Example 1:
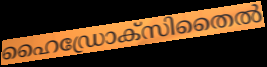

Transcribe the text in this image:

ഹൈഡ്രോക്സിതൈൽ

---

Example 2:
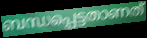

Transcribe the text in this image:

ബന്ധപ്പെട്ടതാണത്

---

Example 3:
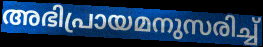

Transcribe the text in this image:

അഭിപ്രായമനുസരിച്ച്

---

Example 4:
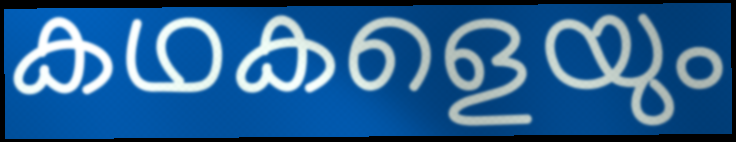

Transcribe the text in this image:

കഥകളെയും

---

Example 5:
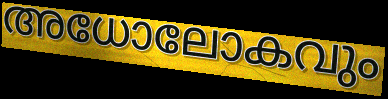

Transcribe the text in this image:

അധോലോകവും